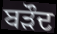
ਬੜੌਦ